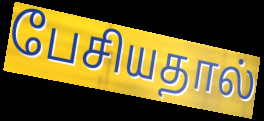
பேசியதால்